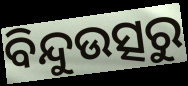
ବିନ୍ଦୁଉତ୍ସରୁ